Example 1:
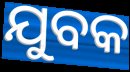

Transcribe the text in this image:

ଯୁବକ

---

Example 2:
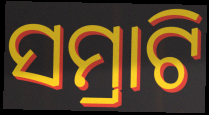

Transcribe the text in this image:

ସମ୍ରାଟି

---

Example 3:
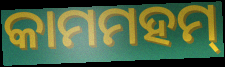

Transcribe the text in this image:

କାମମହମ୍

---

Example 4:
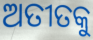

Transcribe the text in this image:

ଅତୀତକୁ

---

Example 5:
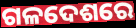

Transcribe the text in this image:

ଗଳଦେଶରେ